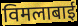
विमलाबाई